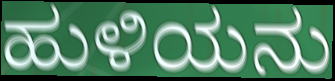
ಹುಳಿಯನು